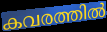
കവരത്തിൽ